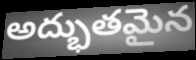
అద్భుతమైన